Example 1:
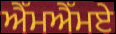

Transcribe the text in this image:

ਐੱਮਐੱਮਏ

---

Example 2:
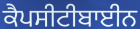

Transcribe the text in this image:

ਕੈਪਸੀਟੀਬਾਈਨ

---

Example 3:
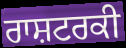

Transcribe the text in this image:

ਰਾਸ਼ਟਰਕੀ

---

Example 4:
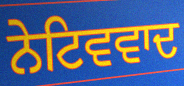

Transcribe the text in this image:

ਨੇਟਿਵਵਾਦ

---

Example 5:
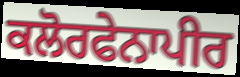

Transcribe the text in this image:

ਕਲੋਰਫੇਨਾਪੀਰ